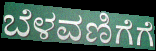
ಬೆಳವಣಿಗೆಗೆ